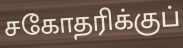
சகோதரிக்குப்